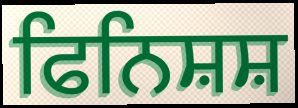
ਫਿਨਿਸ਼ਸ਼